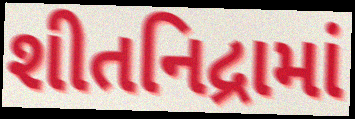
શીતનિદ્રામાં